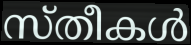
സ്തീകൾ